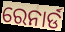
ରେନାର୍ଡ